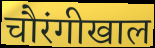
चौरंगीखाल